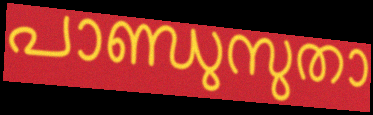
പാണ്ഡുസുതാ